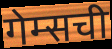
गेम्सची